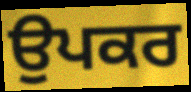
ਉਪਕਰ